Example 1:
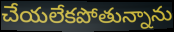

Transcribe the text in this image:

చేయలేకపోతున్నాను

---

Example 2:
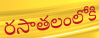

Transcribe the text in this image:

రసాతలంలోకి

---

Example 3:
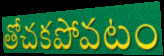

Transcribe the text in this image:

తోచకపోవటం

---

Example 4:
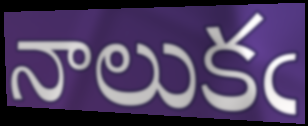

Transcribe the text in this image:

నాలుకఁ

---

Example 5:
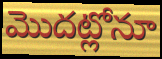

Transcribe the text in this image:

మొదట్లోనూ